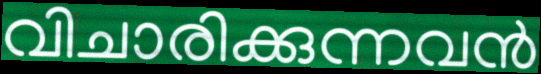
വിചാരിക്കുന്നവൻ